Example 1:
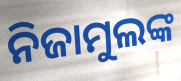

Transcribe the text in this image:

ନିଜାମୁଲଙ୍କ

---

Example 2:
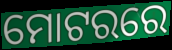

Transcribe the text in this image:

ମୋଟରରେ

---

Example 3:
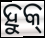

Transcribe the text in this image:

ହୁକ୍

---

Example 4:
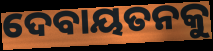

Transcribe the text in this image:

ଦେବାୟତନକୁ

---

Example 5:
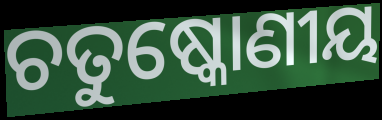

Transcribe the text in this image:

ଚତୁଷ୍କୋଣୀୟ